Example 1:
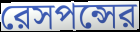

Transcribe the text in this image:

রেসপন্সের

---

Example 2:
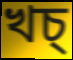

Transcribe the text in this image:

খচ্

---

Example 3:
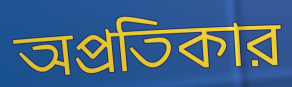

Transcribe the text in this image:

অপ্রতিকার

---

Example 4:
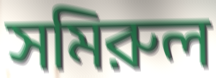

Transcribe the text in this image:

সমিরুল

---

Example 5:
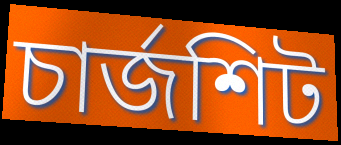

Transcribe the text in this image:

চার্জশিট